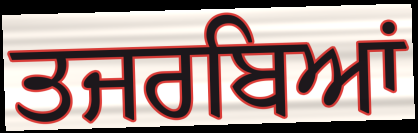
ਤਜਰਬਿਆਂ